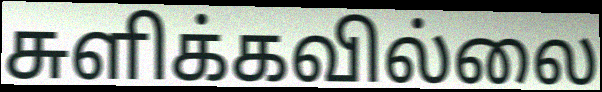
சுளிக்கவில்லை